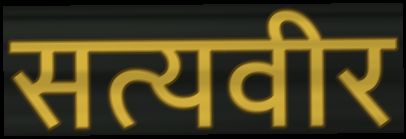
सत्यवीर